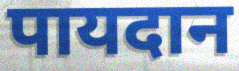
पायदान